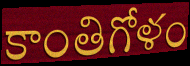
కాంతిగోళం